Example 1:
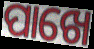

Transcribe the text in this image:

ପାଖେ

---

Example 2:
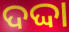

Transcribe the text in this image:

ଦଦ୍ଦା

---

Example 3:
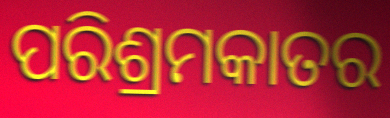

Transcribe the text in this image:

ପରିଶ୍ରମକାତର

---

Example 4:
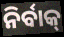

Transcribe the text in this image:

ନିର୍ବାକ୍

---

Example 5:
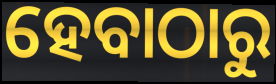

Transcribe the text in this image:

ହେବାଠାରୁ